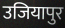
उजियापुर